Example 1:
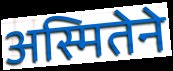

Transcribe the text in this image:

अस्मितेने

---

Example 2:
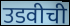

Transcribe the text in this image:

उडवीची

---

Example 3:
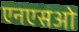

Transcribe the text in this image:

एनएसओ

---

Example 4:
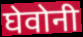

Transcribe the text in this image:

घेवोनी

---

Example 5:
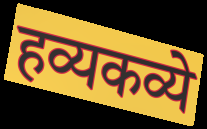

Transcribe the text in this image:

हव्यकव्ये